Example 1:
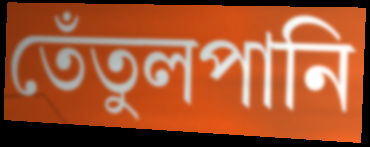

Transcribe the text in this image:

তেঁতুলপানি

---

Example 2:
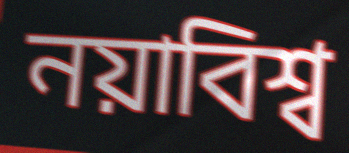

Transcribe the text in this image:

নয়াবিশ্ব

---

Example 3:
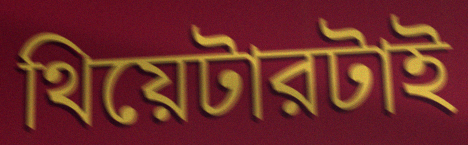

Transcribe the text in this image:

থিয়েটারটাই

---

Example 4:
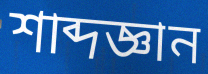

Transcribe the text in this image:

শাব্দজ্ঞান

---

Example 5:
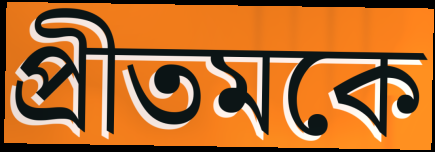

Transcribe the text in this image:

প্রীতমকে